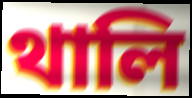
থালি